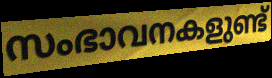
സംഭാവനകളുണ്ട്